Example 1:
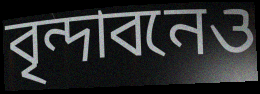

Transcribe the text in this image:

বৃন্দাবনেও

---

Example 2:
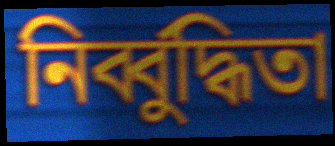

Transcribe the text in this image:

নির্ব্বুদ্ধিতা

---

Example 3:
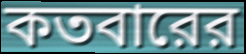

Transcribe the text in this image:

কতবারের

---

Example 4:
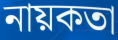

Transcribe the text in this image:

নায়কতা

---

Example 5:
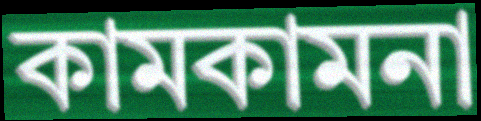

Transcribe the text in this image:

কামকামনা